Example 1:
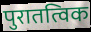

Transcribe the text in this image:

पुरातत्विक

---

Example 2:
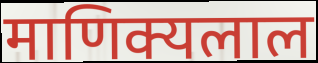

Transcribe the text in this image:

माणिक्यलाल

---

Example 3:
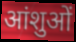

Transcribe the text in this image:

आंशुओं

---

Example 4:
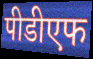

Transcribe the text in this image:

पीडीएफ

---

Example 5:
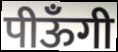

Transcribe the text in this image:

पीऊँगी